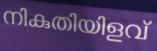
നികുതിയിളവ്